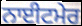
ਨਾਈਟਮੇਰ